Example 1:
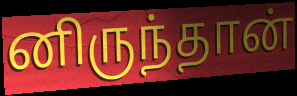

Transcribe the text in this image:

னிருந்தான்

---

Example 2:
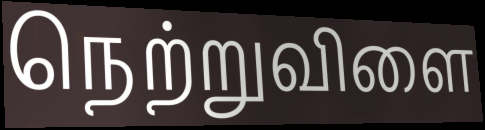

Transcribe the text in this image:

நெற்றுவிளை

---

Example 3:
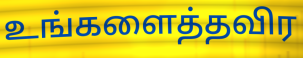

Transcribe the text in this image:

உங்களைத்தவிர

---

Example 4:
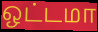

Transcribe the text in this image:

ஒட்டமா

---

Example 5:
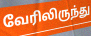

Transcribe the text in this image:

வேரிலிருந்து